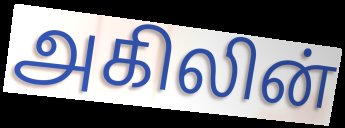
அகிலின்